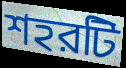
শহরটি